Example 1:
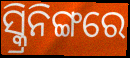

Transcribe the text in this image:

ସ୍କ୍ରିନିଙ୍ଗରେ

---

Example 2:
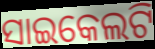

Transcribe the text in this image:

ସାଇକେଲଟି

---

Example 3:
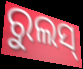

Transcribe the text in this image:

ରୁଲସ୍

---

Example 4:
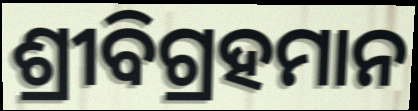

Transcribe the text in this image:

ଶ୍ରୀବିଗ୍ରହମାନ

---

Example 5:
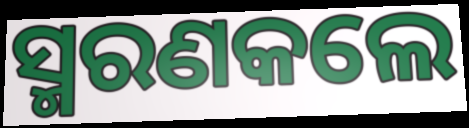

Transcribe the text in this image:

ସ୍ମରଣକଲେ